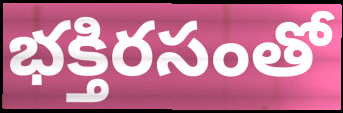
భక్తిరసంతో